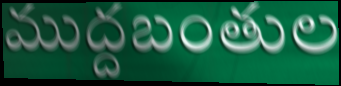
ముద్దబంతుల